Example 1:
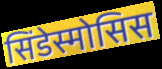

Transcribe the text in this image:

सिंडेस्मोसिस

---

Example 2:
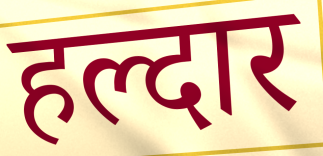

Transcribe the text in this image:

हल्दार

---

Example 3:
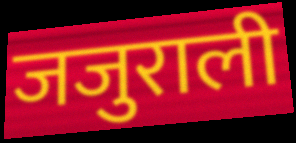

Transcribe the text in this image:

जजुराली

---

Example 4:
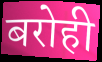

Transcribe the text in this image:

बरोही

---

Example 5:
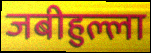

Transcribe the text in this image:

जबीहुल्ला